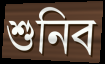
শুনিব